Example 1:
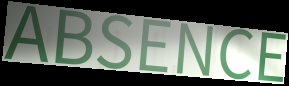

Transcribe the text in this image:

ABSENCE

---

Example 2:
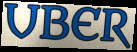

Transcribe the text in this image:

UBER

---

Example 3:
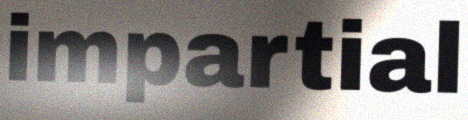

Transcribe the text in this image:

impartial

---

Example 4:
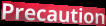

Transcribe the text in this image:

Precaution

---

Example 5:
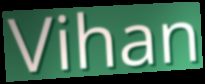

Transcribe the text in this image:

Vihan